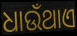
ଧାଉଁଥାଏ